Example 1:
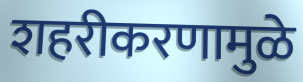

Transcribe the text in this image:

शहरीकरणामुळे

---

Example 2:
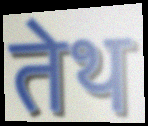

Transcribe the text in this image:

तेथ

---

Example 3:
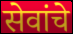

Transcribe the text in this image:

सेवांचे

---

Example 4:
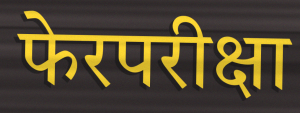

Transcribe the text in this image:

फेरपरीक्षा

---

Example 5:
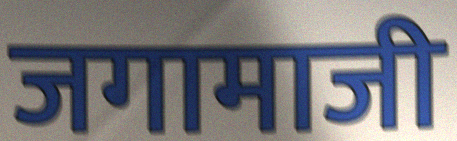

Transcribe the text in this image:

जगामाजी